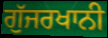
ਗੁੱਜਰਖਾਨੀ